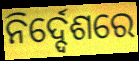
ନିର୍ଦ୍ଦେଶରେ